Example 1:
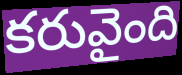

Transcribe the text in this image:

కరువైంది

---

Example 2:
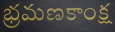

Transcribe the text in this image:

భ్రమణకాంక్ష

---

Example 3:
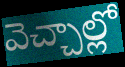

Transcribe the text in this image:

వెచ్చాల్లో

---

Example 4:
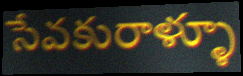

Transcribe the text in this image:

సేవకురాళ్ళూ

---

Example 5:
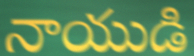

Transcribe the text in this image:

నాయుడి